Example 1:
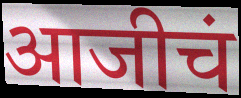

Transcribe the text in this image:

आजीचं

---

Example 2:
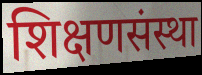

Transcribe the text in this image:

शिक्षणसंस्था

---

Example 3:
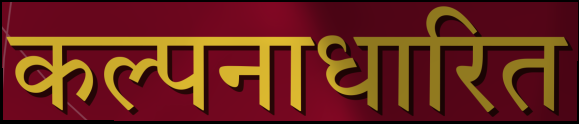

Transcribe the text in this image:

कल्पनाधारित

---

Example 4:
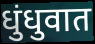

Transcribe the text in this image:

धुंधुवात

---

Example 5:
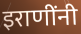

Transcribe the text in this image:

इराणींनी